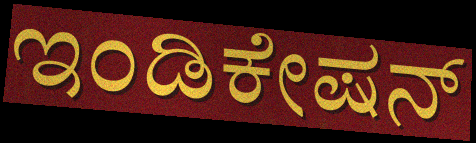
ಇಂಡಿಕೇಷನ್